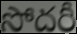
సోదరీ